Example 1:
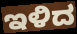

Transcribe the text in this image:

ಇಳಿದ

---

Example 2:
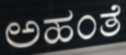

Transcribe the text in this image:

ಅಹಂತೆ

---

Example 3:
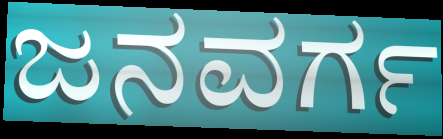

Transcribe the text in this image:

ಜನವರ್ಗ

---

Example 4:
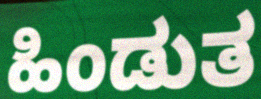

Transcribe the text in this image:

ಹಿಂಡುತ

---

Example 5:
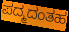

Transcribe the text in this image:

ಪದ್ಮದಂತಹ